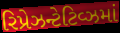
રિપ્રેઝન્ટેટિવ્ઝમાં